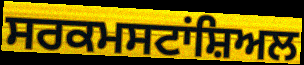
ਸਰਕਮਸਟਾਂਸ਼ਿਅਲ